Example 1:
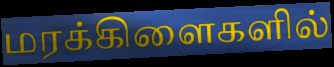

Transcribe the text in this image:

மரக்கிளைகளில்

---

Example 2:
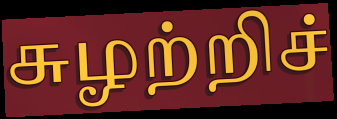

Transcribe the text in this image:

சுழற்றிச்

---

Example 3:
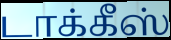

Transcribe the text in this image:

டாக்கீஸ்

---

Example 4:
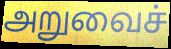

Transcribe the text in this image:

அறுவைச்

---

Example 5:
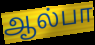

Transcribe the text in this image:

ஆல்பா